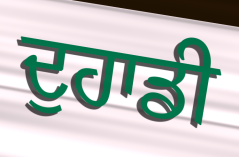
ਦੁਹਾਡੀ